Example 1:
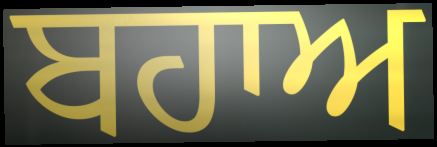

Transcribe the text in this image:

ਬਹਾਅ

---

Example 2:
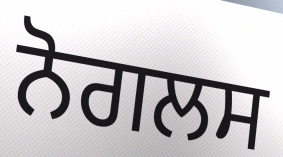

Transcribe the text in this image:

ਨੋਗਲਸ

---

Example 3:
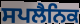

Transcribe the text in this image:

ਸਪਲੈਨਿਕ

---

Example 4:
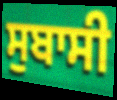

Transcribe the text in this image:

ਸੁਬਾਸੀ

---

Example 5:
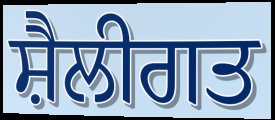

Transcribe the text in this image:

ਸ਼ੈਲੀਗਤ